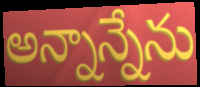
అన్నాన్నేను